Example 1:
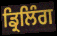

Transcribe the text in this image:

ਡ੍ਰਿਲਿੰਗ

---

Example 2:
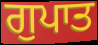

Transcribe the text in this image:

ਗੁਪਾਤ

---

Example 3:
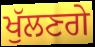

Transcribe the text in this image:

ਖੁੱਲਣਗੇ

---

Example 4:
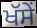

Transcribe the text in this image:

ਖੱਸੇਂ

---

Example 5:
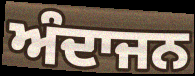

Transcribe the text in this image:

ਅੰਦਾਜਨ